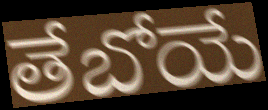
తేబోయే